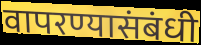
वापरण्यासंबंधी